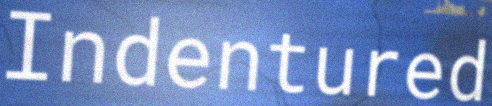
Indentured